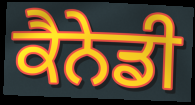
ਕੈਨੇਡੀ